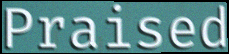
Praised